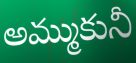
అమ్ముకునీ